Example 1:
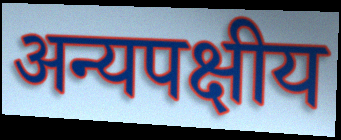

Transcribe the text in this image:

अन्यपक्षीय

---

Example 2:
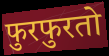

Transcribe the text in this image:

फुरफुरतो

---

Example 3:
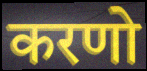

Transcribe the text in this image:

करणो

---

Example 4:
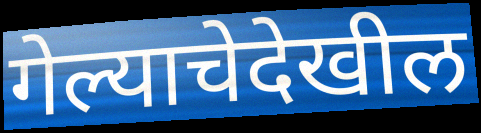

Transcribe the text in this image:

गेल्याचेदेखील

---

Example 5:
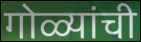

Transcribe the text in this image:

गोळ्यांची